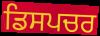
ਡਿਸਪਚਰ